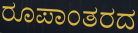
ರೂಪಾಂತರದ